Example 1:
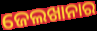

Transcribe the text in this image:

ଜେଲଖାନାର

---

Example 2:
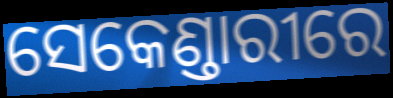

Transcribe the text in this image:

ସେକେଣ୍ଡାରୀରେ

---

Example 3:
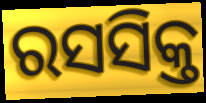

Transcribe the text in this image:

ରସସିକ୍ତ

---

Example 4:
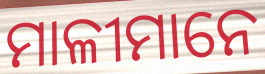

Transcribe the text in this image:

ମାଳୀମାନେ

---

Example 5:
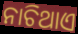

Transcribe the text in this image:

ନାଚିଥାଏ